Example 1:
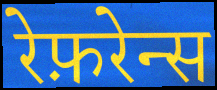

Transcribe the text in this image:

रेफ़रेन्स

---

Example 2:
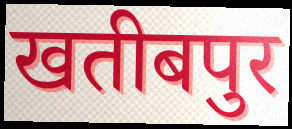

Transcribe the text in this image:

खतीबपुर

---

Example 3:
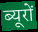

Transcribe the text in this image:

ब्यूरों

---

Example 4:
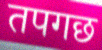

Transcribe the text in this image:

तपगछ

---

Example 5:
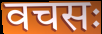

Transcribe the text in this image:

वचसः